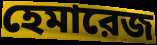
হেমারেজ